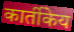
कार्तीकेय